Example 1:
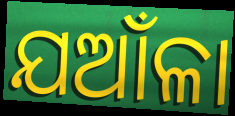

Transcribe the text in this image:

ଯଆଁଳା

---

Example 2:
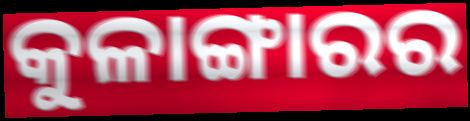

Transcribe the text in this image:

କୁଳାଙ୍ଗାରର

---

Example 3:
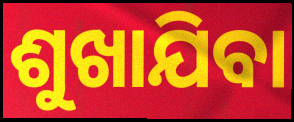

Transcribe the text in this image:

ଶୁଖାଯିବା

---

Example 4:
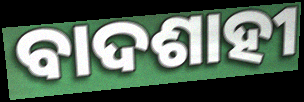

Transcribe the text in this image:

ବାଦଶାହୀ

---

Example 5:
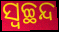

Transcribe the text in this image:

ସ୍ୱଚ୍ଛନ୍ଦ